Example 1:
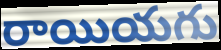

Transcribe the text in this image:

రాయియగు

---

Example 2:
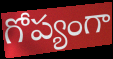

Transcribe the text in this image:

గోప్యంగా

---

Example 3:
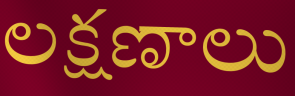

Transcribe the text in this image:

లక్షణాలు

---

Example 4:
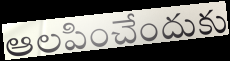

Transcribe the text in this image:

ఆలపించేందుకు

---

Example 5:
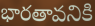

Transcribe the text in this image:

భారతావనికి